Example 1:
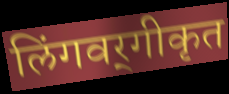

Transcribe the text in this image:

लिंगवर्गीकृत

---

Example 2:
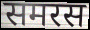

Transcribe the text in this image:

समरस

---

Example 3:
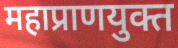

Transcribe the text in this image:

महाप्राणयुक्त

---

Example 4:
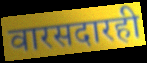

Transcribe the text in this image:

वारसदारही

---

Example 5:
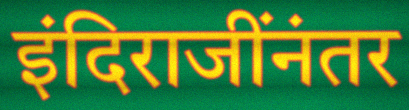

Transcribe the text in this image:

इंदिराजींनंतर